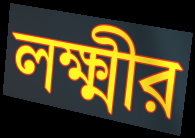
লক্ষ্মীর